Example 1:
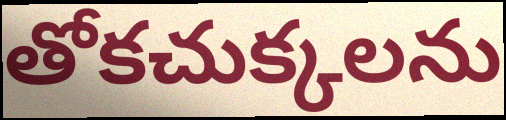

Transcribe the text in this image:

తోకచుక్కలను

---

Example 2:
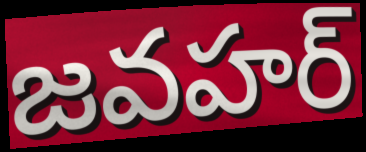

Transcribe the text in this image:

జవహర్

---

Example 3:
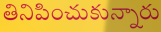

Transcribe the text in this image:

తినిపించుకున్నారు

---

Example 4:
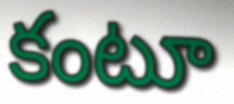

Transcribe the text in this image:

కంటూ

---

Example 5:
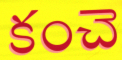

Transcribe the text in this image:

కంచె